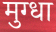
मुग्धा